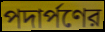
পদার্পণের